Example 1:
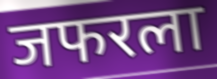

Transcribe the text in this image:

जफरला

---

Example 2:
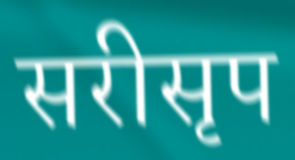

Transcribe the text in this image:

सरीसृप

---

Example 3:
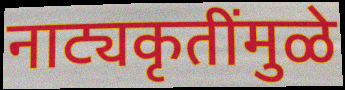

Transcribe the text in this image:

नाट्यकृतींमुळे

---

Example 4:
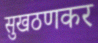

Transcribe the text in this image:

सुखठणकर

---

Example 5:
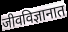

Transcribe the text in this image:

जीवविज्ञानात